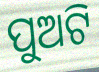
ପୁଅଟି